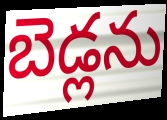
బెడ్లను